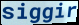
siggir